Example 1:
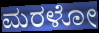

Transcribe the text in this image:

ಮರಳೋ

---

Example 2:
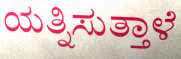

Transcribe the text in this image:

ಯತ್ನಿಸುತ್ತಾಳೆ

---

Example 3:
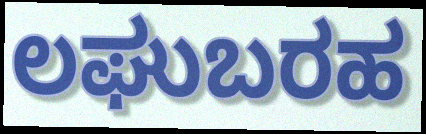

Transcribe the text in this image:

ಲಘುಬರಹ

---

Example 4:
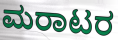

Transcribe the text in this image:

ಮರಾಟರ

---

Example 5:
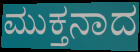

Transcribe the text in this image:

ಮುಕ್ತನಾದ